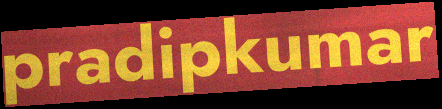
pradipkumar